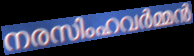
നരസിംഹവർമ്മൻ